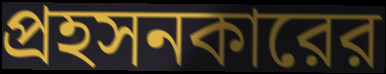
প্রহসনকারের